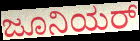
ಜೂನಿಯರ್